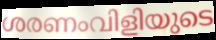
ശരണംവിളിയുടെ